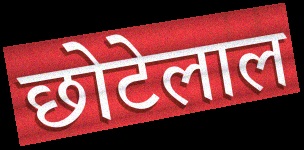
छोटेलाल